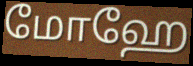
மோஹே